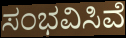
ಸಂಭವಿಸಿವೆ